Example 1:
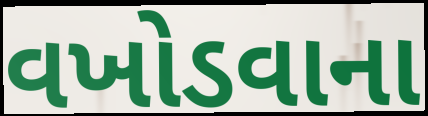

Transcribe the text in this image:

વખોડવાના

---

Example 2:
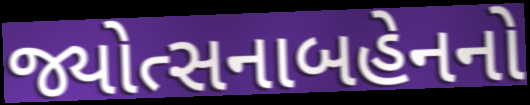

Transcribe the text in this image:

જ્યોત્સનાબહેનનો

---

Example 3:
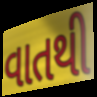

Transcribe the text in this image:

વાતથી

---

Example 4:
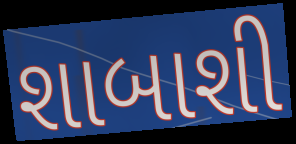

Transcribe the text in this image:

શાબાશી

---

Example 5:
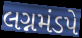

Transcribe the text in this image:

લગ્નમંડપે